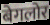
बेगलोर